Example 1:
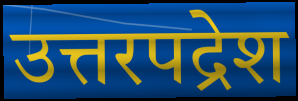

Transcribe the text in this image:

उत्तरपद्रेश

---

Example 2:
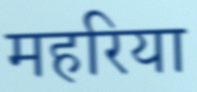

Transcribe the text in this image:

महरिया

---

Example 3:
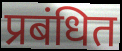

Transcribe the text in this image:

प्रबंधित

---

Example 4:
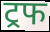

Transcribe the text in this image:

ट्रफ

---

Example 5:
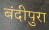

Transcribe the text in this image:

बंदीपुरा